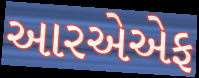
આરએએફ